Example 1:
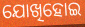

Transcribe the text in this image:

ଯୋଖିହୋଇ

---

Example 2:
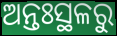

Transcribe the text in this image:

ଅନ୍ତଃସ୍ଥଳରୁ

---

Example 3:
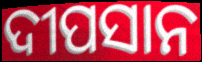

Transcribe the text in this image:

ଦୀପସାନ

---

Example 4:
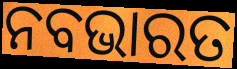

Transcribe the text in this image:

ନବଭାରତ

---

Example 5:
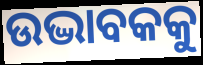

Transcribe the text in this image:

ଉଦ୍ଭାବକକୁ